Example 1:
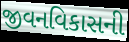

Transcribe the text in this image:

જીવનવિકાસની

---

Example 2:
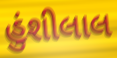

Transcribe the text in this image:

હુંશીલાલ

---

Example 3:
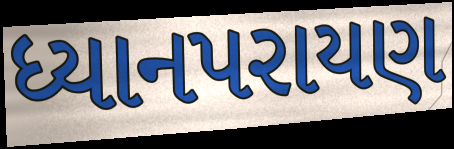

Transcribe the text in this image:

ધ્યાનપરાયણ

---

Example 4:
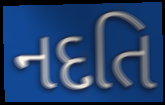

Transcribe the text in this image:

નદતિ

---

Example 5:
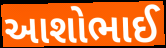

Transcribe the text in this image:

આશોભાઈ